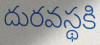
దురవస్థకి